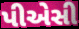
પીએસી